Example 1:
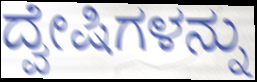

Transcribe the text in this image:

ದ್ವೇಷಿಗಳನ್ನು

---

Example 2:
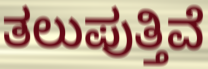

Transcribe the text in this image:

ತಲುಪುತ್ತಿವೆ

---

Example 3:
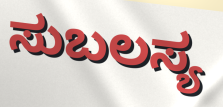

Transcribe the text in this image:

ಸುಬಲಸ್ಯ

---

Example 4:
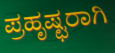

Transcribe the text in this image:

ಪ್ರಹೃಷ್ಟರಾಗಿ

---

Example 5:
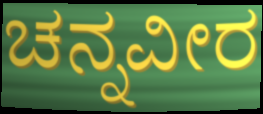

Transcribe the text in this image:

ಚನ್ನವೀರ